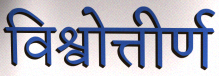
विश्वोत्तीर्ण